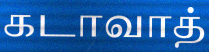
கடாவாத்